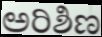
ಅರಿಶಿಣ